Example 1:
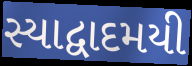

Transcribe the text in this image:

સ્યાદ્વાદમયી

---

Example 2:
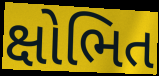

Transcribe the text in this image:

ક્ષોભિત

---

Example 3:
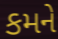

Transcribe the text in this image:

કમને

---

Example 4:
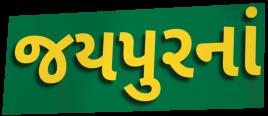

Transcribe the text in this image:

જયપુરનાં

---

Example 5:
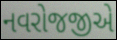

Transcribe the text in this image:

નવરોજજીએ